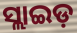
ସ୍ଲାଇଡ଼